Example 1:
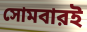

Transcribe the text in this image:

সোমবারই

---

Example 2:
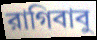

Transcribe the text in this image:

রাগিবাবু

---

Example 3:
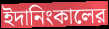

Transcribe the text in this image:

ইদানিংকালের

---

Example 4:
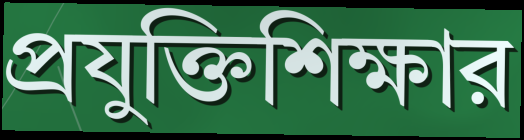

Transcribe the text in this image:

প্রযুক্তিশিক্ষার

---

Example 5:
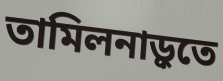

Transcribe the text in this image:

তামিলনাড়ুতে